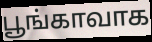
பூங்காவாக